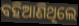
ବହିଆଣିଥିଲେ